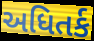
અધિતર્ક